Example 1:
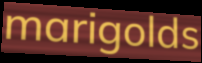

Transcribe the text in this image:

marigolds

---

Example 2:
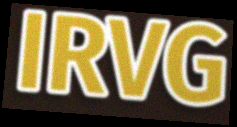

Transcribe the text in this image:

IRVG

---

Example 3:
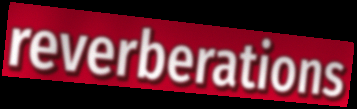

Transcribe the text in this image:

reverberations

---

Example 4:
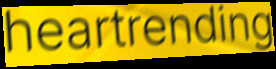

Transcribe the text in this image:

heartrending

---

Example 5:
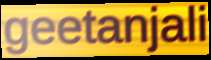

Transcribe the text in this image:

geetanjali